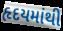
હૃદયમાંથી